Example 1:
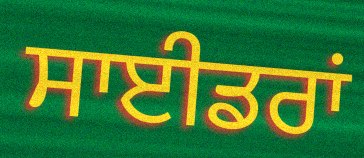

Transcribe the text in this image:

ਸਾਈਡਰਾਂ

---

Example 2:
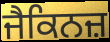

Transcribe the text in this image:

ਜੈਕਿਨਜ਼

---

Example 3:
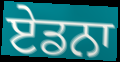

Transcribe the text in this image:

ਏਡਨਾ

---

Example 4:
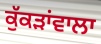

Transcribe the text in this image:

ਕੁੱਕੜਾਂਵਾਲਾ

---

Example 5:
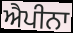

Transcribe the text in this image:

ਐਪੀਨਾ